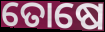
ତୋଷେ